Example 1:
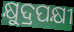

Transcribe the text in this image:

କ୍ଷୁଦ୍ରପକ୍ଷୀ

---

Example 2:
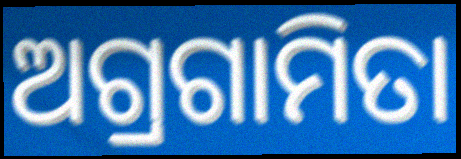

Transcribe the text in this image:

ଅଗ୍ରଗାମିତା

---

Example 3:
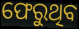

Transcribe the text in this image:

ଫେରୁଥିବ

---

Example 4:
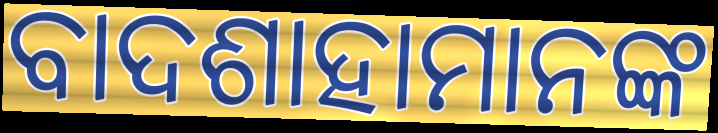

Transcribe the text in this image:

ବାଦଶାହାମାନଙ୍କ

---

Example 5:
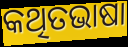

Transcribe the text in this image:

କଥିତଭାଷା